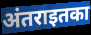
अंतराइतका